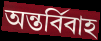
অন্তর্বিবাহ